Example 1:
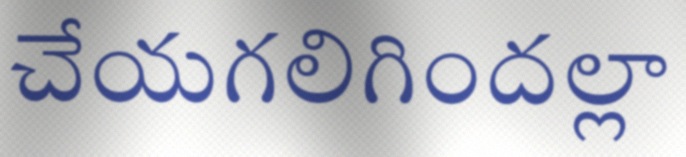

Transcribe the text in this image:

చేయగలిగిందల్లా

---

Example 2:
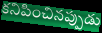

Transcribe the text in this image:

కనిపించినప్పుడు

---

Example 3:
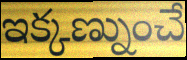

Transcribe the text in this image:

ఇక్కణ్నుంచే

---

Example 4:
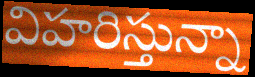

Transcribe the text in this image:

విహరిస్తున్నా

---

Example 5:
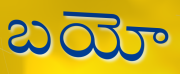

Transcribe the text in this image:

బయో